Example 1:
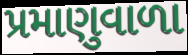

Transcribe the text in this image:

પ્રમાણુવાળા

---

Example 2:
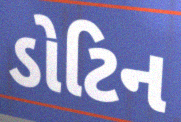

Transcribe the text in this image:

ડોટિન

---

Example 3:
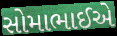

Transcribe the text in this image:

સોમાભાઈએ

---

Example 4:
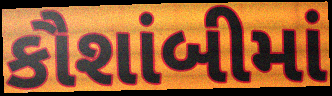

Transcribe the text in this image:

કૌશાંબીમાં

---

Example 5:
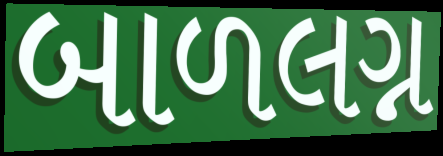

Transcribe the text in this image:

બાળલગ્ન